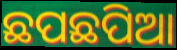
ଛପଛପିଆ